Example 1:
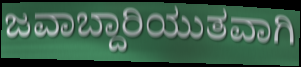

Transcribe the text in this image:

ಜವಾಬ್ದಾರಿಯುತವಾಗಿ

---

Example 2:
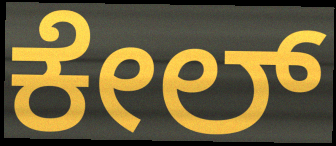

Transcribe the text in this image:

ಕೇಲ್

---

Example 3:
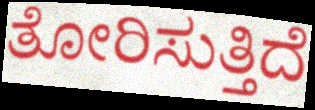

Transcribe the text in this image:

ತೋರಿಸುತ್ತಿದೆ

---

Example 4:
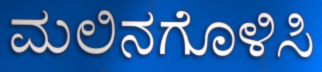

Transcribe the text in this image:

ಮಲಿನಗೊಳಿಸಿ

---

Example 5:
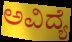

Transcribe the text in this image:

ಅವಿದ್ಯೆ